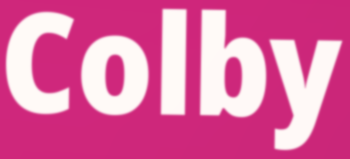
Colby